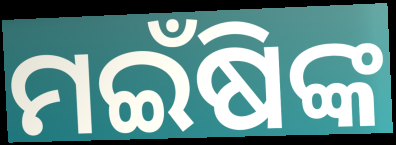
ମଇଁଷିଙ୍କ